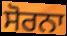
ਸੋਰਨਾ